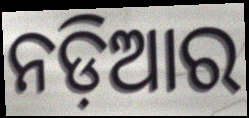
ନଡ଼ିଆର